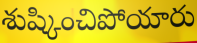
శుష్కించిపోయారు